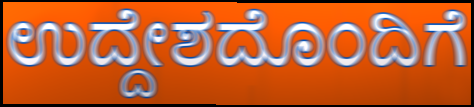
ಉದ್ದೇಶದೊಂದಿಗೆ